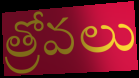
త్రోవలు